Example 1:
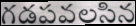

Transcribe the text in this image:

గడపవలసిన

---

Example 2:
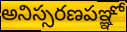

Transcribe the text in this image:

అనిస్సరణపఞ్ఞో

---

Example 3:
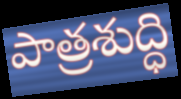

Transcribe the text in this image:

పాత్రశుద్ధి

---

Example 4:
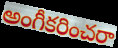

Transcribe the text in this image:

అంగీకరించరా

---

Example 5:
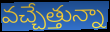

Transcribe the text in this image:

వచ్చేత్తున్నా